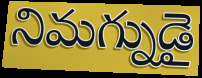
నిమగ్నుడై